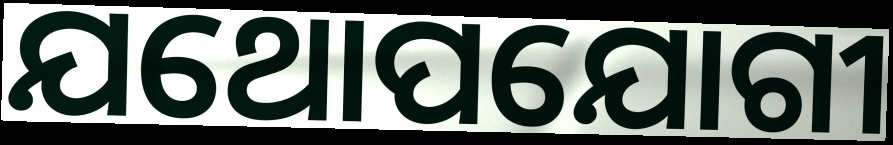
ଯଥୋପଯୋଗୀ